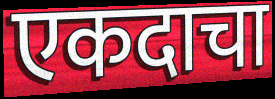
एकदाचा